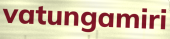
vatungamiri